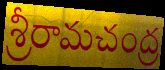
శ్రీరామచంద్ర